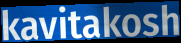
kavitakosh